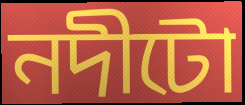
নদীটো